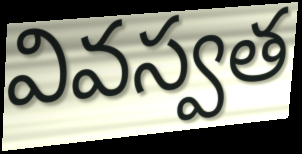
వివస్వత